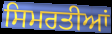
ਸਿਮਰਤੀਆਂ